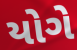
યોગે